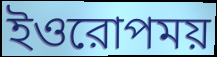
ইওরোপময়